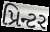
પ્રિન્ટર